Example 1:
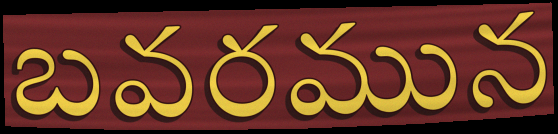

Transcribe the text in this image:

బవరమున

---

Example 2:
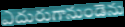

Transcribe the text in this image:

ఎదురుగానుండెను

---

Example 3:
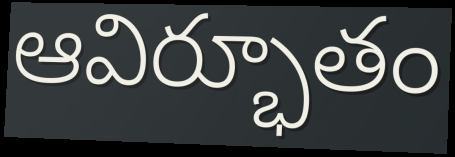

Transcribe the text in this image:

ఆవిర్భూతం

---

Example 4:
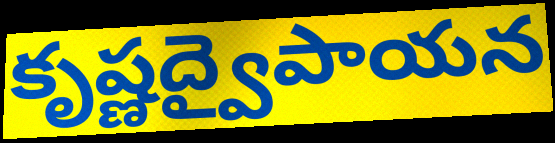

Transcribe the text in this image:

కృష్ణద్వైపాయన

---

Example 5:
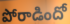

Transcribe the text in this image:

పోరాడిందో